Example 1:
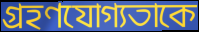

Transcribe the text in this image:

গ্রহণযোগ্যতাকে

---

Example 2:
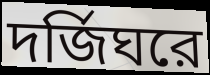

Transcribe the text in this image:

দর্জিঘরে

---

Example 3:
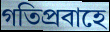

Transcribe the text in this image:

গতিপ্রবাহে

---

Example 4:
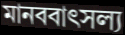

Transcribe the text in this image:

মানববাৎসল্য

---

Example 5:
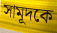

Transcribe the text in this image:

সামূদকে